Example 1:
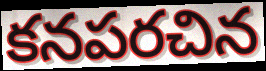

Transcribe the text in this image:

కనపరచిన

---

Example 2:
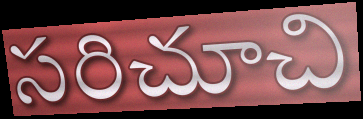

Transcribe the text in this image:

సరిచూచి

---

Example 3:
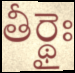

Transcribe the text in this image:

తీర్థైః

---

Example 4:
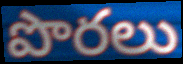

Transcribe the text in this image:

పొరలు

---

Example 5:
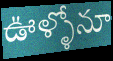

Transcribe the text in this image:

ఊళ్ళోనూ